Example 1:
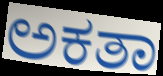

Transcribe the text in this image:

ಅಕತಾ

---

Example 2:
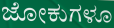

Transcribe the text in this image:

ಜೋಕುಗಳೂ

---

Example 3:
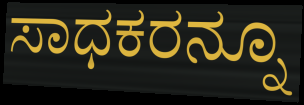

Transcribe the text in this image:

ಸಾಧಕರನ್ನೂ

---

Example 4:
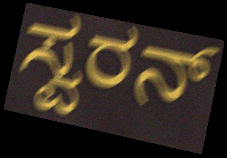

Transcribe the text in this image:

ಸ್ವರನ್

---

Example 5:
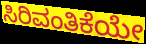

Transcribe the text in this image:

ಸಿರಿವಂತಿಕೆಯೇ